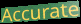
Accurate